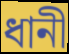
ধানী